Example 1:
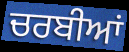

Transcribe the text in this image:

ਚਰਬੀਆਂ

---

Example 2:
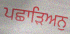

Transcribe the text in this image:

ਪਛਾੜਿਅਨੁ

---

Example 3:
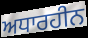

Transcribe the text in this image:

ਅਧਾਰਹੀਨ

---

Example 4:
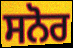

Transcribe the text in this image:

ਸਨੋਰ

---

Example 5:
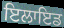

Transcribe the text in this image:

ਇਲਾਇਡ